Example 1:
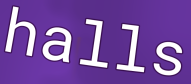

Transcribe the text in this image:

halls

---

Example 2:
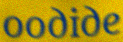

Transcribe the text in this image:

oodide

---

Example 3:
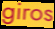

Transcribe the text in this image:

giros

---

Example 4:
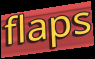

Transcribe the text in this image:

flaps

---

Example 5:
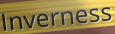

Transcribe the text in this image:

Inverness